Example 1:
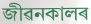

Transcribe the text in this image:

জীৱনকালৰ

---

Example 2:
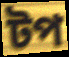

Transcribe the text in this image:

টপ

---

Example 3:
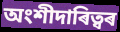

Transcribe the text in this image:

অংশীদাৰিত্বৰ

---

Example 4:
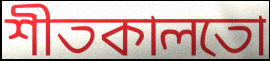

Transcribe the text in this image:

শীতকালতো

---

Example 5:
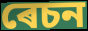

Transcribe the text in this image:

ৰেচন